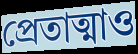
প্রেতাত্মাও